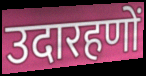
उदारहणों